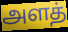
அளத்